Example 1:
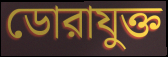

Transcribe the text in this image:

ডোরাযুক্ত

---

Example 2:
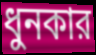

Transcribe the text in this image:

ধুনকার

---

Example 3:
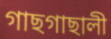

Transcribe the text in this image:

গাছগাছালী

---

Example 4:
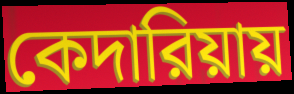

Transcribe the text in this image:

কেদারিয়ায়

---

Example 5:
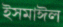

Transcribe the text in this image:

ইসমাঈল